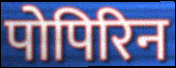
पोपिरिन